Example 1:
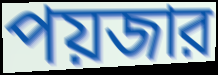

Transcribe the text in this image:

পয়জার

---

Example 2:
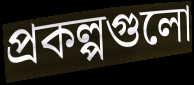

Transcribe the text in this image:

প্রকল্পগুলো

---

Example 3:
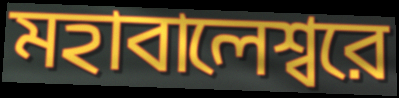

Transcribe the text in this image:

মহাবালেশ্বরে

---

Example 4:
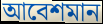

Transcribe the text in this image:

আবেশমান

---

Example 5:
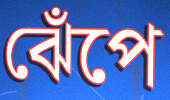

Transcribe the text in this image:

ঝেঁপে